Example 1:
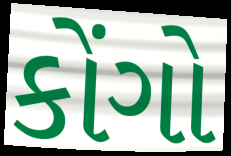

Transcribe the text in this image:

કોંગો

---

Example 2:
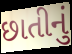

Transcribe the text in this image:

છાતીનું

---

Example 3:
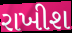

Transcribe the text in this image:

રાખીશ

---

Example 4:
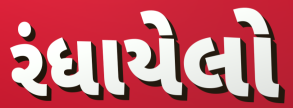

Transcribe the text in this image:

રંધાયેલો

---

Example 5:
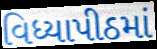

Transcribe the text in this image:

વિધ્યાપીઠમાં